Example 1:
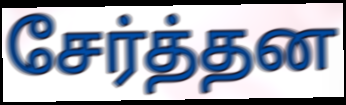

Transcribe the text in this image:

சேர்த்தன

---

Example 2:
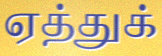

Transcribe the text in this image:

ஏத்துக்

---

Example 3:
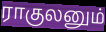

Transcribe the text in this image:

ராகுலனும்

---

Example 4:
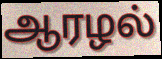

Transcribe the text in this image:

ஆரழல்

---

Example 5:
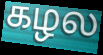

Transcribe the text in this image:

கழல